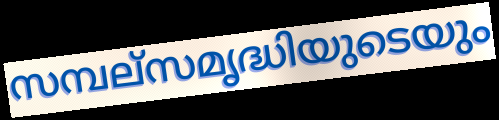
സമ്പല്സമൃദ്ധിയുടെയും